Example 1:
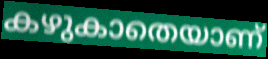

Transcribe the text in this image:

കഴുകാതെയാണ്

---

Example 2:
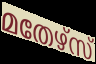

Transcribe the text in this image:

മതേഴ്സ്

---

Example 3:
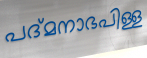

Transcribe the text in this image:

പദ്മനാഭപിള്ള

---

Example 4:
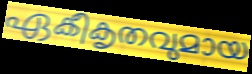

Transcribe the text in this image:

ഏകീകൃതവുമായ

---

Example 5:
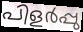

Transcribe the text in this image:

പിളർപ്പു